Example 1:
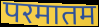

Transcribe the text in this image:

परमातम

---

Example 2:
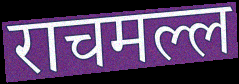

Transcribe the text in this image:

राचमल्ल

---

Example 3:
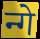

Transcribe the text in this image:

न्गे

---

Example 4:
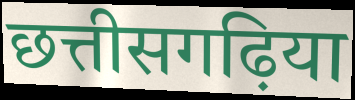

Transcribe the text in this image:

छत्तीसगढ़िया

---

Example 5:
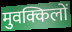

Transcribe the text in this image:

मुवक्किलों